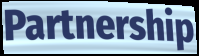
Partnership